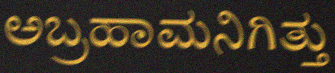
ಅಬ್ರಹಾಮನಿಗಿತ್ತು